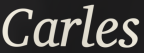
Carles